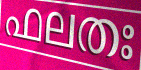
ഫലതഃ